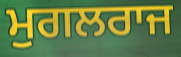
ਮੁਗਲਰਾਜ